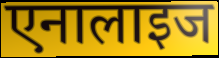
एनालाइज